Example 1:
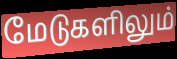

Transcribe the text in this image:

மேடுகளிலும்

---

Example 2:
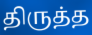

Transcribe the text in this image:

திருத்த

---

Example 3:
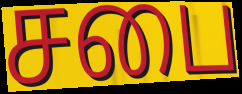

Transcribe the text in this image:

சபை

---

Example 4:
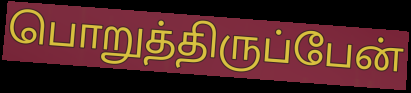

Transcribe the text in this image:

பொறுத்திருப்பேன்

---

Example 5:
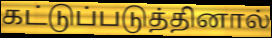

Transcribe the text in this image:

கட்டுப்படுத்தினால்